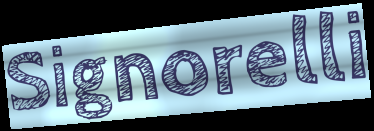
Signorelli